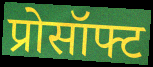
प्रोसॉफ्ट